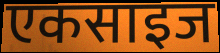
एकसाइज